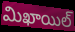
మిఖాయిల్